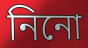
নিনো